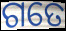
ଗତେ